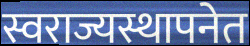
स्वराज्यस्थापनेत